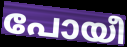
പോയീ